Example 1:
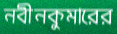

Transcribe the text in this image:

নবীনকুমারের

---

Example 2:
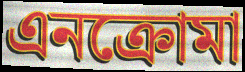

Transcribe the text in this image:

এনক্রোমা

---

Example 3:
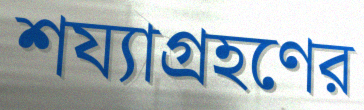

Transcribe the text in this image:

শয্যাগ্রহণের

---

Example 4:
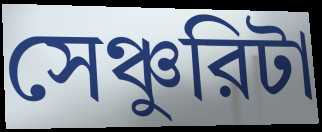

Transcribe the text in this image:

সেঞ্চুরিটা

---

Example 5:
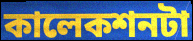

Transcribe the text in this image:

কালেকশনটা